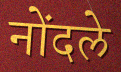
नोंदले